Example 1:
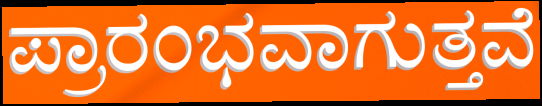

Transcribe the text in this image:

ಪ್ರಾರಂಭವಾಗುತ್ತವೆ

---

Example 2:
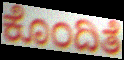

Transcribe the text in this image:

ಕೊಂದಿತೆ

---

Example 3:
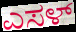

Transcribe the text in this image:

ಎಸಳ್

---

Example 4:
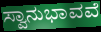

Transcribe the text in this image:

ಸ್ವಾನುಭಾವವೆ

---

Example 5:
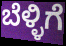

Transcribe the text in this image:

ಬೆಳ್ಳಿಗೆ